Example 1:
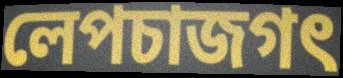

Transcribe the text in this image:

লেপচাজগৎ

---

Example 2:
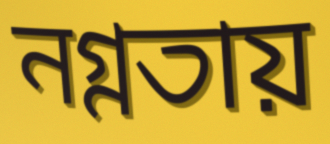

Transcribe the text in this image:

নগ্নতায়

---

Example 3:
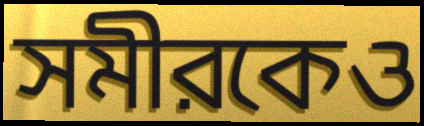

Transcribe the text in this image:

সমীরকেও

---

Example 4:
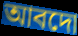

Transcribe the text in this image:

আবদো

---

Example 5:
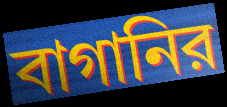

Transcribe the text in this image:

বাগানির